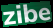
zibe